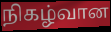
நிகழ்வான